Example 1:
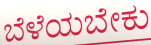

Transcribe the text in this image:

ಬೆಳೆಯಬೇಕು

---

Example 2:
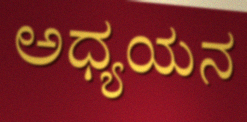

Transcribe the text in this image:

ಅಧ್ಯಯನ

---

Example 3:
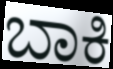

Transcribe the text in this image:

ಬಾಕಿ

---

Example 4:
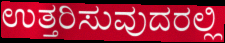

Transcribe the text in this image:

ಉತ್ತರಿಸುವುದರಲ್ಲಿ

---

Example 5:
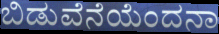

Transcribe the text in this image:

ಬಿಡುವೆನೆಯೆಂದನಾ